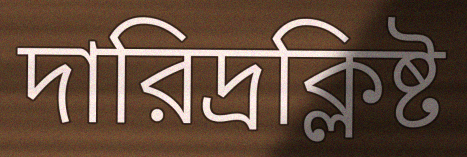
দারিদ্রক্লিষ্ট